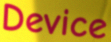
Device